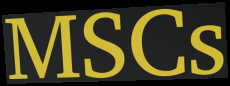
MSCs